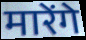
मारेंगे